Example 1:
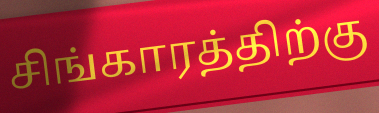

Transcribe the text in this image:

சிங்காரத்திற்கு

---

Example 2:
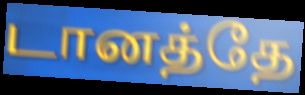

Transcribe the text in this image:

டானத்தே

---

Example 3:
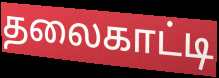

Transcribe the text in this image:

தலைகாட்டி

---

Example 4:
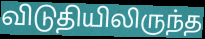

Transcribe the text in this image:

விடுதியிலிருந்த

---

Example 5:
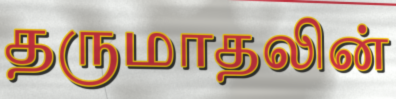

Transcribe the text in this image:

தருமாதலின்